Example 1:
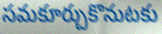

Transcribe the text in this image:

సమకూర్చుకొనుటకు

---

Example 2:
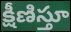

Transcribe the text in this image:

క్షీణిస్తూ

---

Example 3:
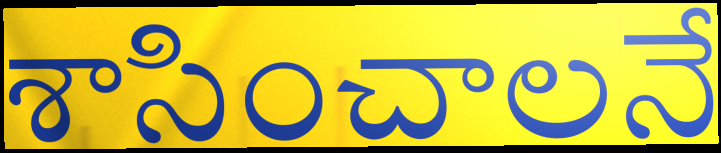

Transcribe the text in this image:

శాసించాలనే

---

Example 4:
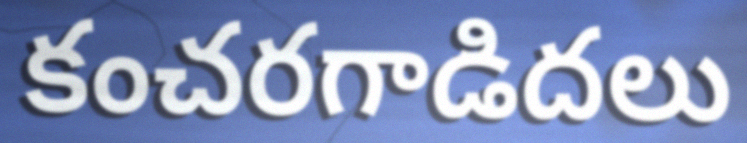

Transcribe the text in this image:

కంచరగాడిదలు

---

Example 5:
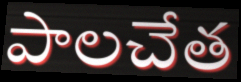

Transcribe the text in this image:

పాలచేత